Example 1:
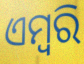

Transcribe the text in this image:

ଏମ୍ବରି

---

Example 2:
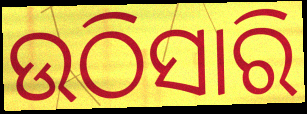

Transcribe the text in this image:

ଉଠିସାରି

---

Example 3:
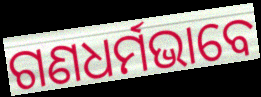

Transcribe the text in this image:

ଗଣଧର୍ମଭାବେ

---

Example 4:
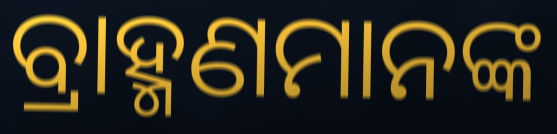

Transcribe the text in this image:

ବ୍ରାହ୍ମଣମାନଙ୍କ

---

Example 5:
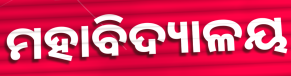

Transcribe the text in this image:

ମହାବିଦ୍ୟାଳୟ